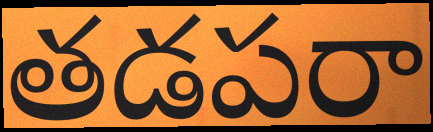
తడపరా